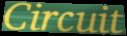
Circuit